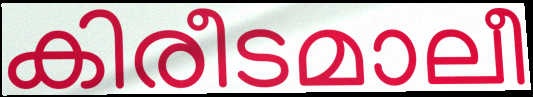
കിരീടമാലീ